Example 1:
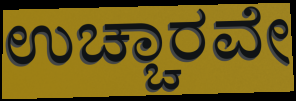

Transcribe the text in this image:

ಉಚ್ಚಾರವೇ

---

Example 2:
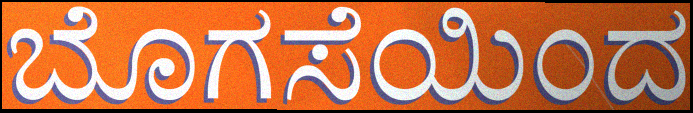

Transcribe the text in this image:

ಬೊಗಸೆಯಿಂದ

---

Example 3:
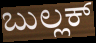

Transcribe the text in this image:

ಬುಲ್ಲಕ್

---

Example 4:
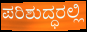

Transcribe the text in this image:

ಪರಿಶುದ್ಧರಲ್ಲಿ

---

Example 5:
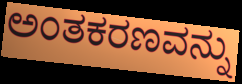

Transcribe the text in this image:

ಅಂತಕರಣವನ್ನು